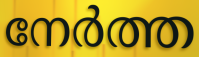
നേർത്ത